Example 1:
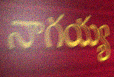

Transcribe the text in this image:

నాగయ్య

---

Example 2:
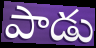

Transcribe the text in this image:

పాడు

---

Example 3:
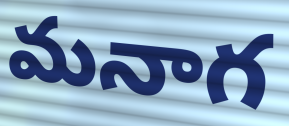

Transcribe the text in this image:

మనాగ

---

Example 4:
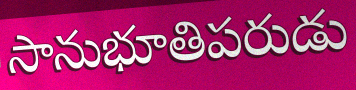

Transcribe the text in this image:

సానుభూతిపరుడు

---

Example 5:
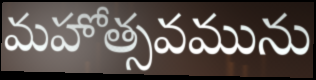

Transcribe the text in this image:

మహోత్సవమును